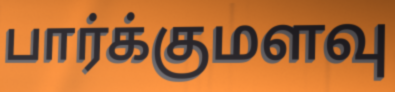
பார்க்குமளவு